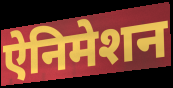
ऐनिमेशन